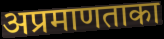
अप्रमाणताका